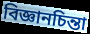
বিজ্ঞানচিন্তা